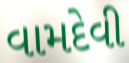
વામદેવી